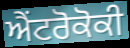
ਐਂਟਰੋਕੋਕੀ